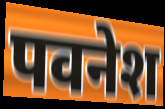
पवनेश